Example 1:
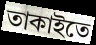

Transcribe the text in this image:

তাকাইতে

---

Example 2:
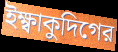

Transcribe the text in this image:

ইক্ষ্বাকুদিগের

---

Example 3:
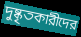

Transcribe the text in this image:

দুষ্কৃতকারীদের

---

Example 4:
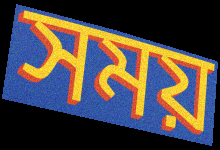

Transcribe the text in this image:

সময়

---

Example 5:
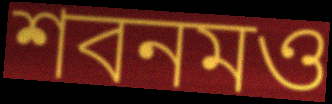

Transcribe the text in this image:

শবনমও